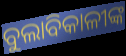
ବୁଲାବିକାଳୀଙ୍କ